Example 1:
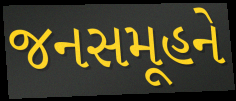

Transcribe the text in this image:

જનસમૂહને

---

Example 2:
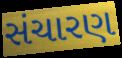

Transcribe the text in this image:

સંચારણ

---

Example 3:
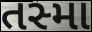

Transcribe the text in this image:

તસ્મા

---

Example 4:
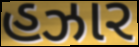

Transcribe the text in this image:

હઝાર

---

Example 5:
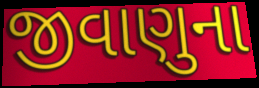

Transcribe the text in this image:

જીવાણુના